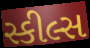
સ્કીલ્સ